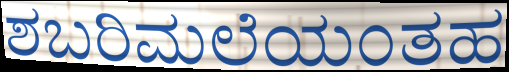
ಶಬರಿಮಲೆಯಂತಹ